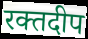
रक्तदीप